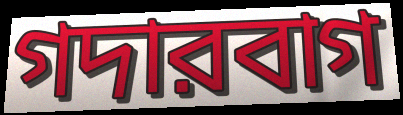
গদারবাগ